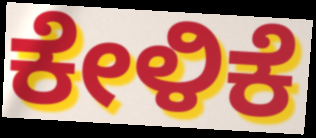
ಕೇಳಿಕೆ